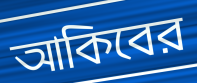
আকিবের